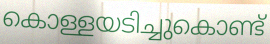
കൊള്ളയടിച്ചുകൊണ്ട്